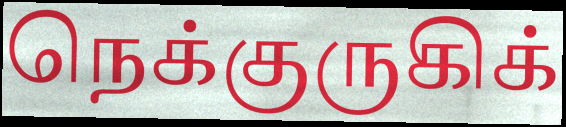
நெக்குருகிக்